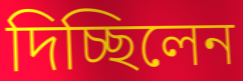
দিচ্ছিলেন